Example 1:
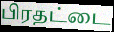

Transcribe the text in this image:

பிரதட்டை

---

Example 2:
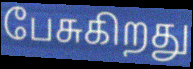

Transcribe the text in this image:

பேசுகிறது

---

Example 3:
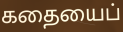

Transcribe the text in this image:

கதையைப்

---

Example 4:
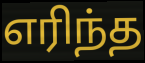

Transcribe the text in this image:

எரிந்த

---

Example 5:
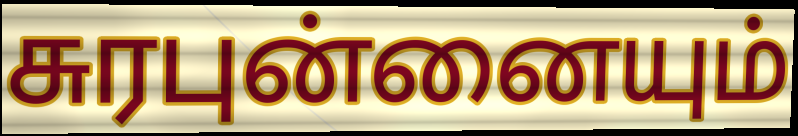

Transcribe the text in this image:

சுரபுன்னையும்